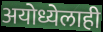
अयोध्येलाही